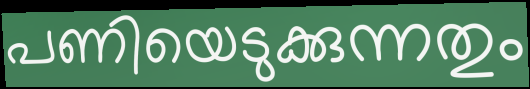
പണിയെടുക്കുന്നതും